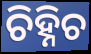
ଚିହ୍ନିଚ